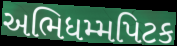
અભિધમ્મપિટક